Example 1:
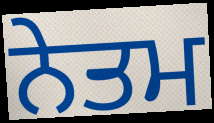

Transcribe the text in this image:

ਨੇਤਮ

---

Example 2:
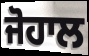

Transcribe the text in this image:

ਜੋਹਾਲ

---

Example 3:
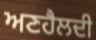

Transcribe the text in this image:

ਅਣਹੈਲਦੀ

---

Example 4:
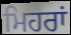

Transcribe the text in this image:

ਮਿਹਰਾਂ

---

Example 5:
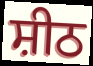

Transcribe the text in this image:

ਸ਼ੀਠ